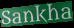
Sankha